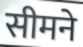
सीमने